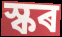
স্কৰ